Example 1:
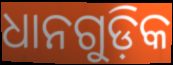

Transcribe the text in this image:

ଧାନଗୁଡ଼ିକ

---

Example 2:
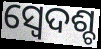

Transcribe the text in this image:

ସ୍ବେଦଶ୍ଚ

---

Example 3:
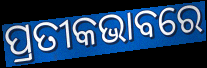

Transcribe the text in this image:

ପ୍ରତୀକଭାବରେ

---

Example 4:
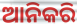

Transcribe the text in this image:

ଆନିକରି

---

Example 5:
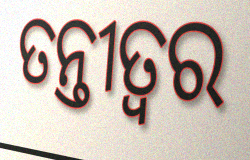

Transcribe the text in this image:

ତନ୍ତୀତ୍ୱର